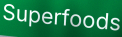
Superfoods